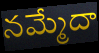
నమ్మేదా